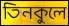
তিনকুলে